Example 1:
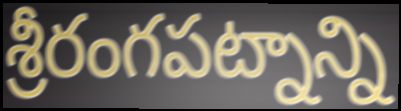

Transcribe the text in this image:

శ్రీరంగపట్నాన్ని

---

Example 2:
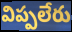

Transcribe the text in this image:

విప్పలేరు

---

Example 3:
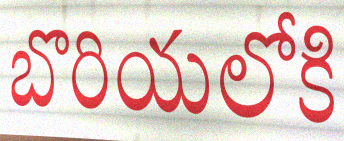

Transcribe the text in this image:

బొరియలోకి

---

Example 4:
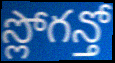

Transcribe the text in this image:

స్లోగన్తో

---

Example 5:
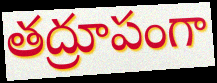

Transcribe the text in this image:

తద్రూపంగా